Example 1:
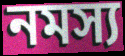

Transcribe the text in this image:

নমস্য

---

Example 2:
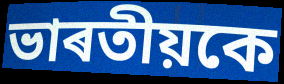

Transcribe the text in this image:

ভাৰতীয়কে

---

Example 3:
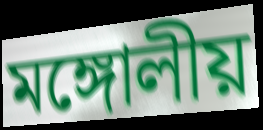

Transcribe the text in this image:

মঙ্গোলীয়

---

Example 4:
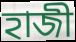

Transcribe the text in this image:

হাজী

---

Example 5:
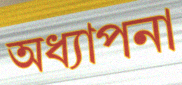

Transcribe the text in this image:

অধ্যাপনা